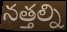
నత్తల్ని